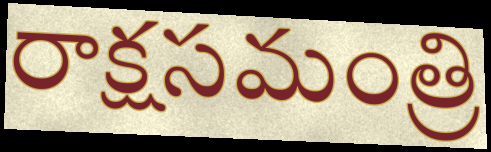
రాక్షసమంత్రి